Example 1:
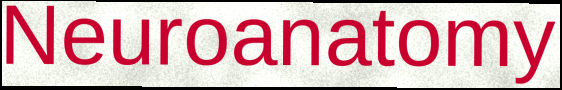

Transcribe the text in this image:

Neuroanatomy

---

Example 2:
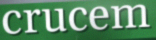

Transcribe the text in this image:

crucem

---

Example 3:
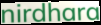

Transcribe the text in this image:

nirdhara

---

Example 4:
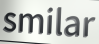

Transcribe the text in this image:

smilar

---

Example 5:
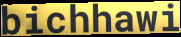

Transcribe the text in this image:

bichhawi